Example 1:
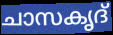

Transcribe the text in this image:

ചാസകൃദ്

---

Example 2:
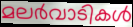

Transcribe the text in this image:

മലർവാടികൾ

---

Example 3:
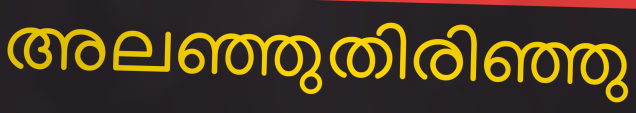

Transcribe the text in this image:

അലഞ്ഞുതിരിഞ്ഞു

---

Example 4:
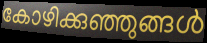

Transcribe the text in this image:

കോഴിക്കുഞ്ഞുങ്ങൾ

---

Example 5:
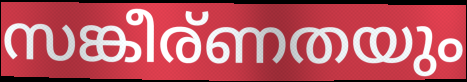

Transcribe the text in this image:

സങ്കീര്ണതയും